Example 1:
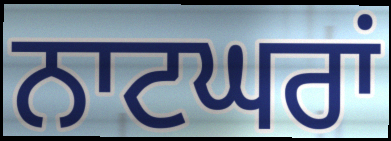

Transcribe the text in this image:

ਨਾਟਘਰਾਂ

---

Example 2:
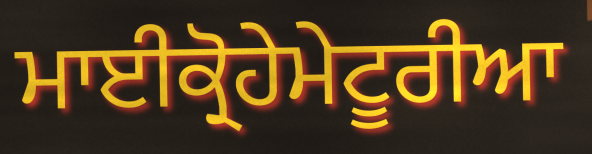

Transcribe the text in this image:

ਮਾਈਕ੍ਰੋਹੇਮੇਟੂਰੀਆ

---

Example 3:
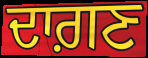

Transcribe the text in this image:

ਦਾਗ਼ਣ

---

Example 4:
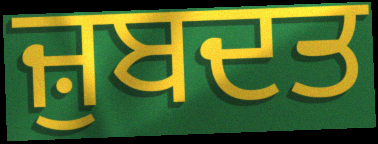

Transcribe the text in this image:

ਜ਼ੁਬਦਤ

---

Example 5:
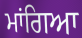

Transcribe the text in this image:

ਮਾਂਗਿਆ